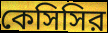
কেসিসির